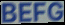
BEFG